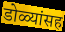
डोळ्यांसह